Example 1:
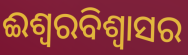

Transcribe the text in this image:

ଈଶ୍ୱରବିଶ୍ୱାସର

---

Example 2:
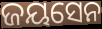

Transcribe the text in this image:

ଜୟସେନ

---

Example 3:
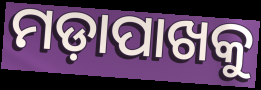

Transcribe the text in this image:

ମଡ଼ାପାଖକୁ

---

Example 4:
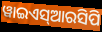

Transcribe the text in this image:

ୱାଇଏସ୍ଆରସିପି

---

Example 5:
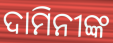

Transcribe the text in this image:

ଦାମିନୀଙ୍କ